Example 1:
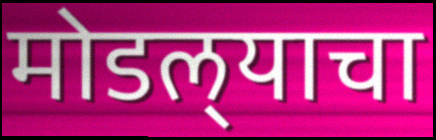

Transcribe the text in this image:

मोडल्याचा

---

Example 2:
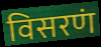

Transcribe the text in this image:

विसरणं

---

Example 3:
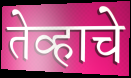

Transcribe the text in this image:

तेव्हाचे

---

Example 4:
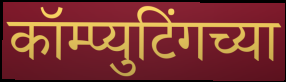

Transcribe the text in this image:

कॉम्प्युटिंगच्या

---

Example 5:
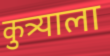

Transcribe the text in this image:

कुत्र्याला